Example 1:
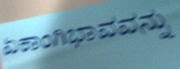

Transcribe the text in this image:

ಏಕಾಂಗಿಭಾವವನ್ನು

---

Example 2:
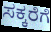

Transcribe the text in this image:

ಸಕ್ಕರೆಗೆ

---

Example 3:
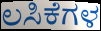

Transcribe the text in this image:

ಲಸಿಕೆಗಳ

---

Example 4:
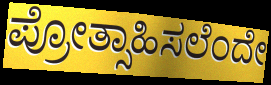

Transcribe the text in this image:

ಪ್ರೋತ್ಸಾಹಿಸಲೆಂದೇ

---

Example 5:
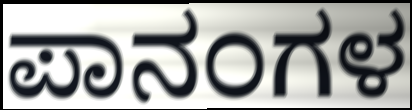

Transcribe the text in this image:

ಪಾನಂಗಳ